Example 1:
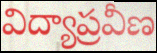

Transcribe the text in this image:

విద్యాప్రవీణ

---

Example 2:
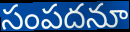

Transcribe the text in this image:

సంపదనూ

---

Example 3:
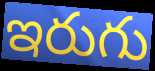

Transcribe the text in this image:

ఇరుగు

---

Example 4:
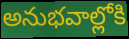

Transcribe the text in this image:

అనుభవాల్లోకి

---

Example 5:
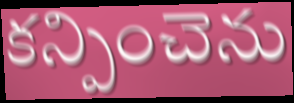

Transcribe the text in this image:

కన్పించెను